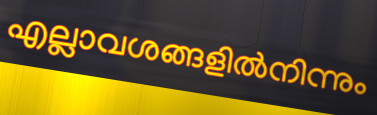
എല്ലാവശങ്ങളിൽനിന്നും